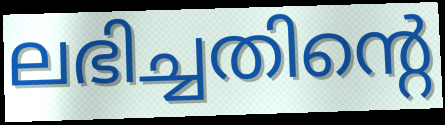
ലഭിച്ചതിന്റെ